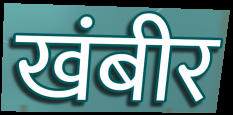
खंबीर